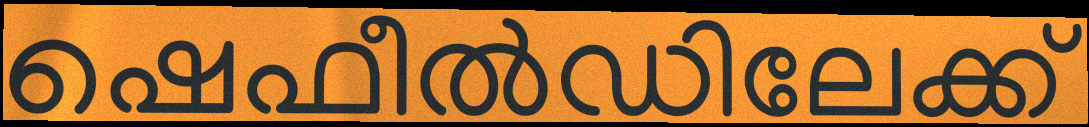
ഷെഫീൽഡിലേക്ക്